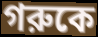
গরুকে